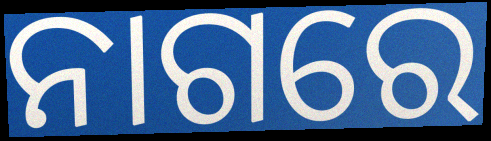
ନାଗରେ